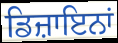
ਡਿਜ਼ਾਇਨਾਂ